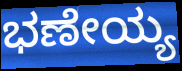
ಭಣೇಯ್ಯ